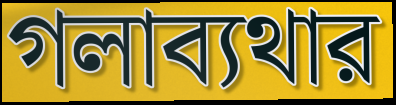
গলাব্যথার